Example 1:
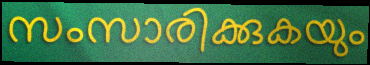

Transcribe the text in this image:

സംസാരിക്കുകയും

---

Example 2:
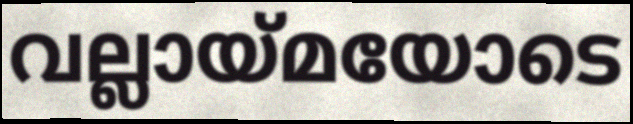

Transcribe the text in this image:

വല്ലായ്മയോടെ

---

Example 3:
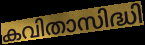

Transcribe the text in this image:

കവിതാസിദ്ധി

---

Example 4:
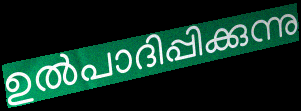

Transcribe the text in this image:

ഉൽപാദിപ്പിക്കുന്നു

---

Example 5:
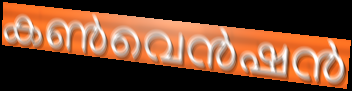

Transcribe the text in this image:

കൺവെൻഷൻ